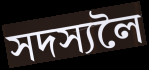
সদস্যলৈ